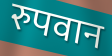
रुपवान